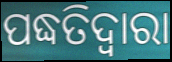
ପଦ୍ଧତିଦ୍ଵାରା